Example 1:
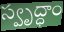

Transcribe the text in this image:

స్వృద్ధాం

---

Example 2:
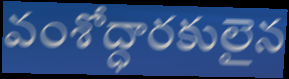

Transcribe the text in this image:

వంశోద్ధారకులైన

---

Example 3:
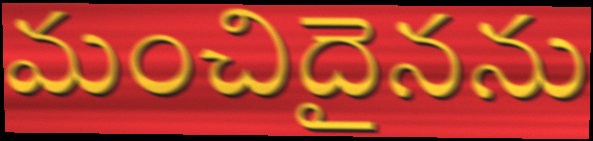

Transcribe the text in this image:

మంచిదైనను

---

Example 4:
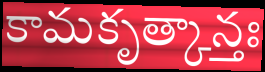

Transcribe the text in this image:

కామకృత్కాన్తః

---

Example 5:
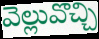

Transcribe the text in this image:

వెల్లువొచ్చి